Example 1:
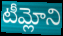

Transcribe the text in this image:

టీమ్లోని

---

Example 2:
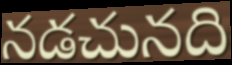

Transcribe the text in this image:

నడచునది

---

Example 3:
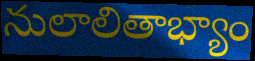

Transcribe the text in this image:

నులాలితాభ్యాం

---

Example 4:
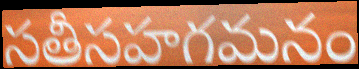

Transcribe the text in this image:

సతీసహగమనం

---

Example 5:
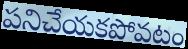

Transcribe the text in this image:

పనిచేయకపోవటం